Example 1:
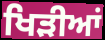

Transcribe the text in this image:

ਖਿੜੀਆਂ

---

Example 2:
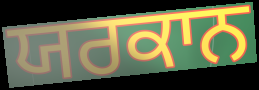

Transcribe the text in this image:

ਯਰਕਾਨ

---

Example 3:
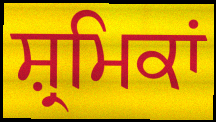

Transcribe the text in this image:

ਸ਼੍ਰਮਿਕਾਂ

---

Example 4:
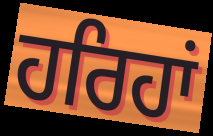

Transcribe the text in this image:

ਹਰਿਹਾਂ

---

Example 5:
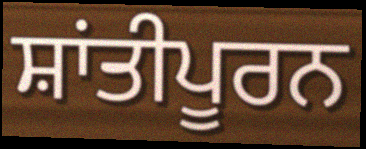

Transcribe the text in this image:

ਸ਼ਾਂਤੀਪੂਰਨ